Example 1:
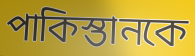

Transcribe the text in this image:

পাকিস্তানকে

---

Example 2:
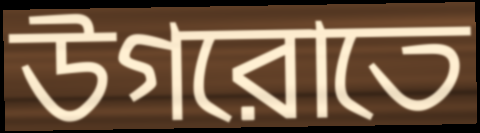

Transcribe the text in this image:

উগরোতে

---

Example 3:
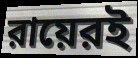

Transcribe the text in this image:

রায়েরই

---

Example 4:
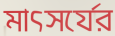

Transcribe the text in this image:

মাৎসর্যের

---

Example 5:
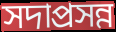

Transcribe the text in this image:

সদাপ্রসন্ন